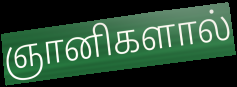
ஞானிகளால்